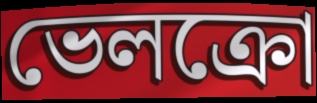
ভেলক্রো